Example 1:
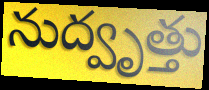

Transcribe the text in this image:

నుద్వృత్తు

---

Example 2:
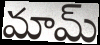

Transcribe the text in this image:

మామ్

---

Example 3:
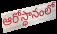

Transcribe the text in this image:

ఆరోస్థానంలో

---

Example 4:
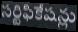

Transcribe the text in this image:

సర్టిఫికేషన్లు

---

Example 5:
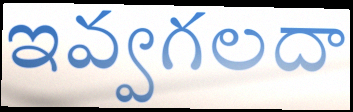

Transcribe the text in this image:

ఇవ్వగలదా